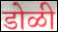
डोळी